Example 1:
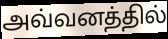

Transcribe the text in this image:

அவ்வனத்தில்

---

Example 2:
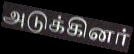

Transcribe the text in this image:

அடுக்கினர்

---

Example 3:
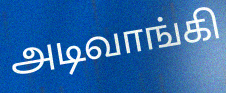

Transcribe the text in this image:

அடிவாங்கி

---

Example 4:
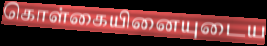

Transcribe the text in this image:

கொள்கையினையுடைய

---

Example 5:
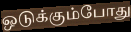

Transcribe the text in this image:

ஒடுக்கும்போது